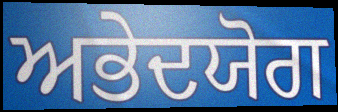
ਅਭੇਦਯੋਗ